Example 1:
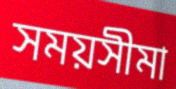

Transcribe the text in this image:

সময়সীমা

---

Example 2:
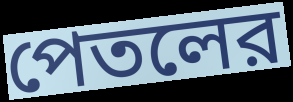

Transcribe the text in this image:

পেতলের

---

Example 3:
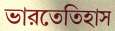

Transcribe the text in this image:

ভারতেতিহাস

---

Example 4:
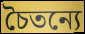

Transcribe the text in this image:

চৈতন্যে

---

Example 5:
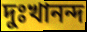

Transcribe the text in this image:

দুঃখানন্দ